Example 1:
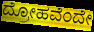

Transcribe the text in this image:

ದ್ರೋಹವೆಂದೇ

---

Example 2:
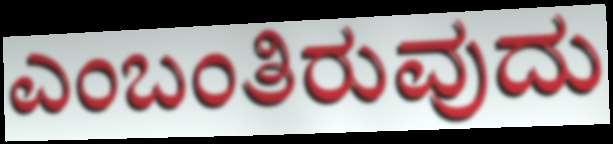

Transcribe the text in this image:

ಎಂಬಂತಿರುವುದು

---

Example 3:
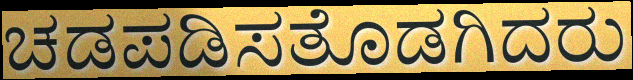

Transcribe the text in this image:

ಚಡಪಡಿಸತೊಡಗಿದರು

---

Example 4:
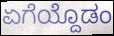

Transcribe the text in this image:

ಏಗೆಯ್ದೊಡಂ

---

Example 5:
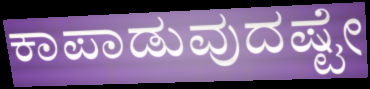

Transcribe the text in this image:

ಕಾಪಾಡುವುದಷ್ಟೇ